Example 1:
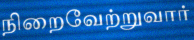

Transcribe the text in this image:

நிறைவேற்றுவார்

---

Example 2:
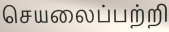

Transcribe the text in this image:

செயலைப்பற்றி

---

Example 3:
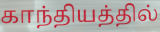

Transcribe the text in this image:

காந்தியத்தில்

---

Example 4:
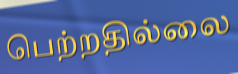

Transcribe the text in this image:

பெற்றதில்லை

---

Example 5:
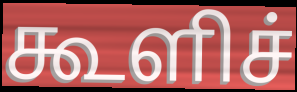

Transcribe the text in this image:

கூளிச்